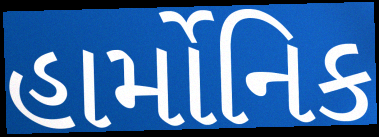
હાર્મોનિક